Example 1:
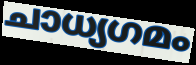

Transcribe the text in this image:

ചാധ്യഗമം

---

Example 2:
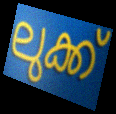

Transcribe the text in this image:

ലുക്ക്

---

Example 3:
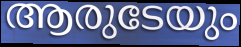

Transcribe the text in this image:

ആരുടേയും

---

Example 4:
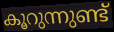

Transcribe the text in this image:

കൂറുന്നുണ്ട്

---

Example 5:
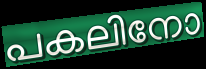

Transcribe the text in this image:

പകലിനോ